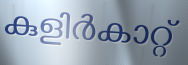
കുളിർകാറ്റ്